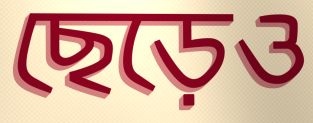
ছেড়েও